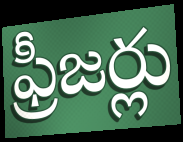
ఫ్రీజర్లు